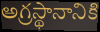
అగ్రస్థానానికి